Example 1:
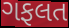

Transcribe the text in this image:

ગફલત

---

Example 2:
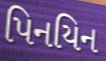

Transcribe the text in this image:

પિનયિન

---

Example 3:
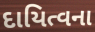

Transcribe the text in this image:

દાયિત્વના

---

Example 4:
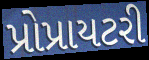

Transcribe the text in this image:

પ્રોપ્રાયટરી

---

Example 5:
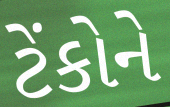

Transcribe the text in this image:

ટેંકોને